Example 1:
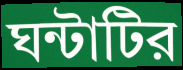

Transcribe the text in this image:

ঘন্টাটির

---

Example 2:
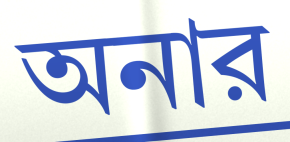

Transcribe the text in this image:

অনার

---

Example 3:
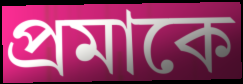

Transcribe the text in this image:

প্রমাকে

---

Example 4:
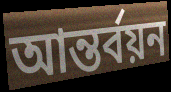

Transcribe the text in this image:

আন্তর্বয়ন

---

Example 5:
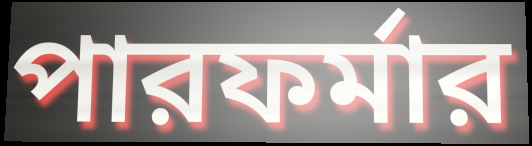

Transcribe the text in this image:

পারফর্মার